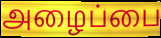
அழைப்பை